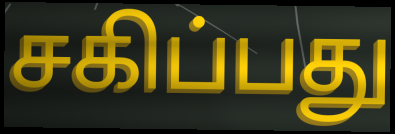
சகிப்பது